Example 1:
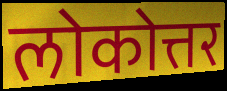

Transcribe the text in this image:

लोकोत्तर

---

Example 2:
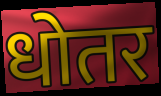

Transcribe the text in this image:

धोतर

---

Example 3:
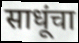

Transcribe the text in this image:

साधूंचा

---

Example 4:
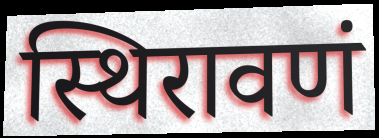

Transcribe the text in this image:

स्थिरावणं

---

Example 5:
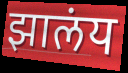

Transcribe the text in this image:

झालंय